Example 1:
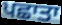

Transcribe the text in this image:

ਪਛਾਤਾ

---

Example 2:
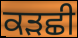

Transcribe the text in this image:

ਕੜਛੀ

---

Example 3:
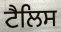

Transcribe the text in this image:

ਟੈਲਿਸ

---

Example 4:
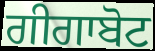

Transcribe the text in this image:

ਗੀਗਾਬੋਟ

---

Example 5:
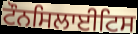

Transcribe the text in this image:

ਟੌਨਸਿਲਾਈਟਿਸ